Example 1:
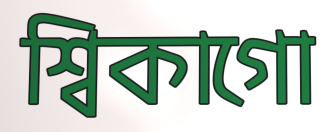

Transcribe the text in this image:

শ্বিকাগো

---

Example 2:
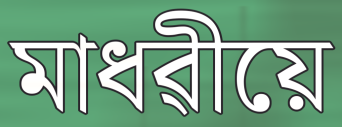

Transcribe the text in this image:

মাধৱীয়ে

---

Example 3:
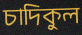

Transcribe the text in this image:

চাদিকুল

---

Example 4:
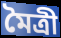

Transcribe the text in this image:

মৈত্ৰী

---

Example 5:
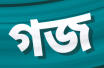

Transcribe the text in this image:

গজ